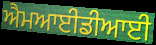
ਐਮਆਈਡੀਆਈ